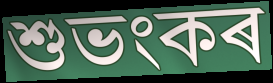
শুভংকৰ